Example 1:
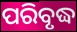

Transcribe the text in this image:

ପରିବୃଦ୍ଧ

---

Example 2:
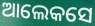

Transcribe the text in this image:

ଆଲେକସେ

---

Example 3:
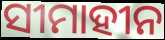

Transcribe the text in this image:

ସୀମାହୀନ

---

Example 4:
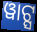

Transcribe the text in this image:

ୱାଟ୍ସ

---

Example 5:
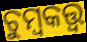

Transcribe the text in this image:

ଚୁମ୍ବକତ୍ତ୍ୱ